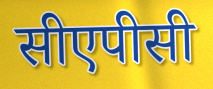
सीएपीसी